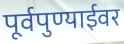
पूर्वपुण्याईवर